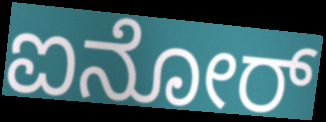
ಐನೋರ್